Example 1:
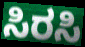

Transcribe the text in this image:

ಸಿರಸಿ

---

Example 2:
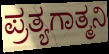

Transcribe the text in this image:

ಪ್ರತ್ಯಗಾತ್ಮನಿ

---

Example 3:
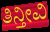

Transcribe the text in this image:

ತಿನ್ತೀವಿ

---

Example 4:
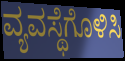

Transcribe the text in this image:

ವ್ಯವಸ್ಥೆಗೊಳಿಸಿ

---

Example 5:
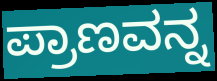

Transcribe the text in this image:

ಪ್ರಾಣವನ್ನ